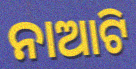
ନାଆଟି